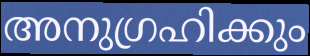
അനുഗ്രഹിക്കും